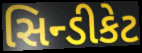
સિન્ડીકેટ